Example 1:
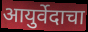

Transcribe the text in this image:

आयुर्वेदाचा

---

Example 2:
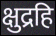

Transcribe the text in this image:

क्षुद्रहि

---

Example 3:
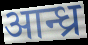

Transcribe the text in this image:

आन्ध्र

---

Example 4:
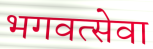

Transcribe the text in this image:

भगवत्सेवा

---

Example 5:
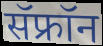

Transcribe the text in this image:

सॅफ्रॉन